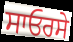
ਸਾਓਰਸੇ